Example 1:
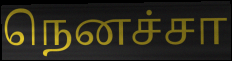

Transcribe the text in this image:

நெனச்சா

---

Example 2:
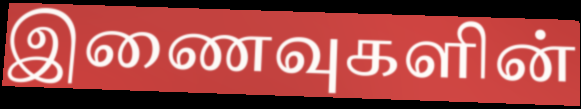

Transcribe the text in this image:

இணைவுகளின்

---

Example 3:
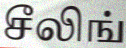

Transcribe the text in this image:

சீலிங்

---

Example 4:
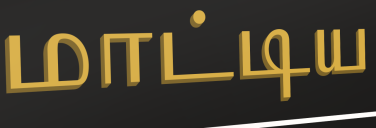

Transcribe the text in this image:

மாட்டிய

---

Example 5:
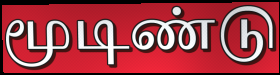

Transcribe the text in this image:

மூடிண்டு